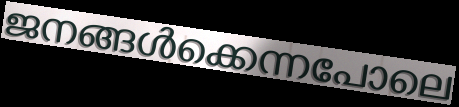
ജനങ്ങൾക്കെന്നപോലെ